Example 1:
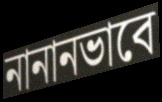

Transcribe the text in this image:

নানানভাবে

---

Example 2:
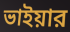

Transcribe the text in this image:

ভাইয়ার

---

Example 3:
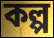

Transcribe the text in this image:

কল্প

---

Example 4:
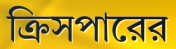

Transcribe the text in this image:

ক্রিসপারের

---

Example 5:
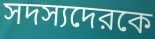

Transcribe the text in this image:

সদস্যদেরকে